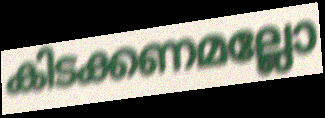
കിടക്കണമല്ലോ